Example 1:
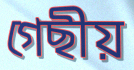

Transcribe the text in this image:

গেছীয়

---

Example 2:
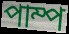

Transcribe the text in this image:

পাম্প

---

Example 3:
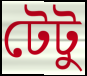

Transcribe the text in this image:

টেটু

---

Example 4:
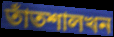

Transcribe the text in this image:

তাঁতশালখন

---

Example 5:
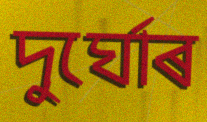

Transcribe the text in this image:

দুৰ্ঘোৰ